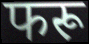
फरू